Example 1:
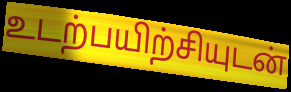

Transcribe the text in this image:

உடற்பயிற்சியுடன்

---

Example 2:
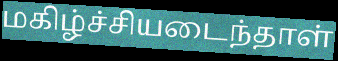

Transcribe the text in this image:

மகிழ்ச்சியடைந்தாள்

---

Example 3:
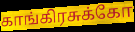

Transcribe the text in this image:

காங்கிரசுக்கோ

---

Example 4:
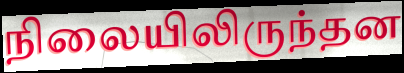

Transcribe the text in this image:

நிலையிலிருந்தன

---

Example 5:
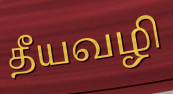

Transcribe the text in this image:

தீயவழி